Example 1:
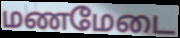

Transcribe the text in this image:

மணமேடை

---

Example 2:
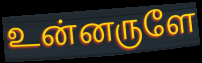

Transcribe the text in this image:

உன்னருளே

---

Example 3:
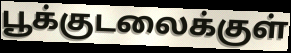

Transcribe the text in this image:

பூக்குடலைக்குள்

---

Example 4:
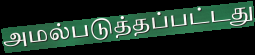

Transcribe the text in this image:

அமல்படுத்தப்பட்டது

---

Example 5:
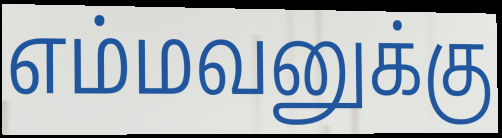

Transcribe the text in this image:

எம்மவனுக்கு